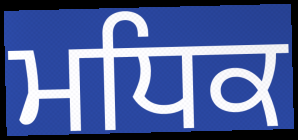
ਮਧਿਕ